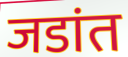
जडांत